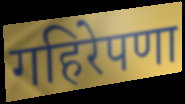
गहिरेपणा